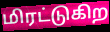
மிரட்டுகிற